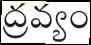
ద్రవ్యం